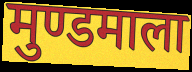
मुण्डमाला